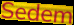
Sedem